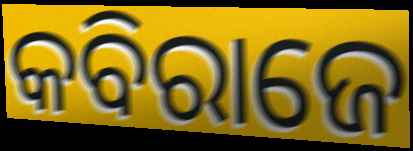
କବିରାଜେ